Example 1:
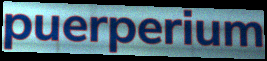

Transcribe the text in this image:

puerperium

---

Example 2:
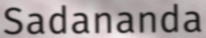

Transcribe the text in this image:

Sadananda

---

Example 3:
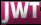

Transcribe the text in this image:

JWT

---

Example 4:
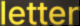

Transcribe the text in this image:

letter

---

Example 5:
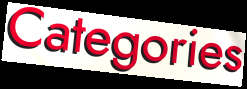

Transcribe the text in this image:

Categories